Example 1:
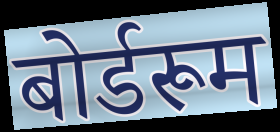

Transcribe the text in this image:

बोर्डरूम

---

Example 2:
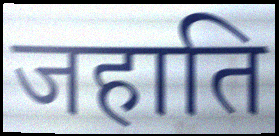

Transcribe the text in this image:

जहाति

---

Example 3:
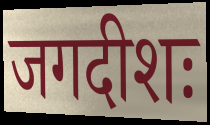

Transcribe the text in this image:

जगदीशः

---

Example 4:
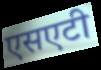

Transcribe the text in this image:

एसएटी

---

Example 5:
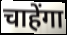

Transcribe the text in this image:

चाहेंगा